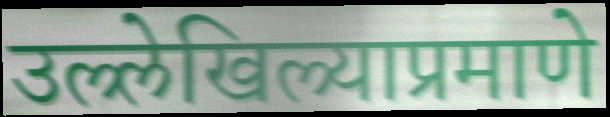
उल्लेखिल्याप्रमाणे